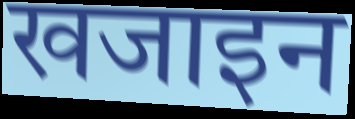
खजाइन